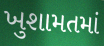
ખુશામતમાં